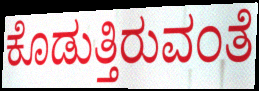
ಕೊಡುತ್ತಿರುವಂತೆ